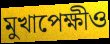
মুখাপেক্ষীও